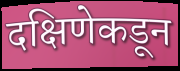
दक्षिणेकडून